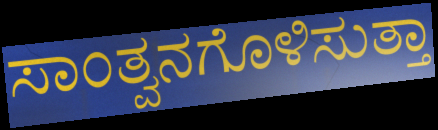
ಸಾಂತ್ವನಗೊಳಿಸುತ್ತಾ